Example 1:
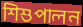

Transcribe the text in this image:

শিশুপালন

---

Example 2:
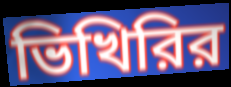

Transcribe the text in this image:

ভিখিরির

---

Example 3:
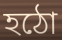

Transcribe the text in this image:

হঠো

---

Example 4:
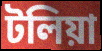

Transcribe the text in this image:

টলিয়া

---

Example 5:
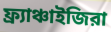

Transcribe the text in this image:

ফ্র্যাঞ্চাইজিরা